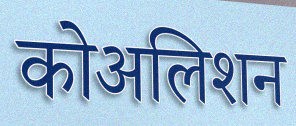
कोअलिशन